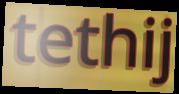
tethij